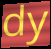
dy